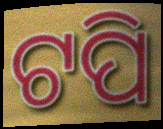
ଟପି